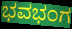
ಭವಭಂಗ